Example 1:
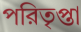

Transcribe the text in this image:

পরিতৃপ্তা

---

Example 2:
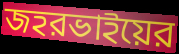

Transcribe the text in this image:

জহরভাইয়ের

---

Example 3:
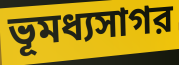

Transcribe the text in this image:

ভূমধ্যসাগর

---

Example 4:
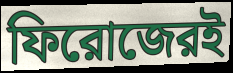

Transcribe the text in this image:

ফিরোজেরই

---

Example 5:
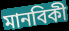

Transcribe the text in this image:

মানবিকী